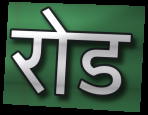
रोड